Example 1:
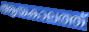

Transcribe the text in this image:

ആയകാലത്ത്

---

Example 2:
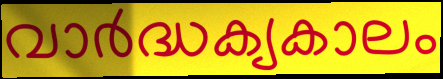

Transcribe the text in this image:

വാർദ്ധക്യകാലം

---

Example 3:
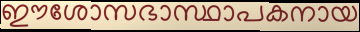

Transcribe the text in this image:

ഈശോസഭാസ്ഥാപകനായ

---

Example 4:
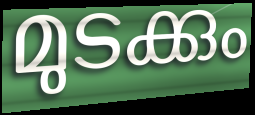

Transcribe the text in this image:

മുടക്കും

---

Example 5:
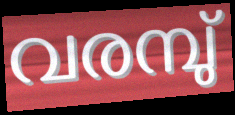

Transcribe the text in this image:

വരമ്പു്